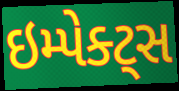
ઇમ્પેક્ટ્સ